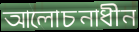
আলোচনাধীন